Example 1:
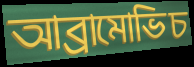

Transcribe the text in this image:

আব্রামোভিচ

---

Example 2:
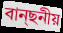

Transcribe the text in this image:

বান্ছনীয়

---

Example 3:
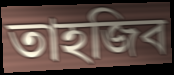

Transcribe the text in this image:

তাহজিব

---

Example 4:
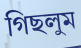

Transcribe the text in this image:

গিছলুম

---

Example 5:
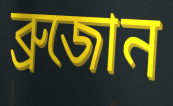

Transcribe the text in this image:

ব্রুজোন